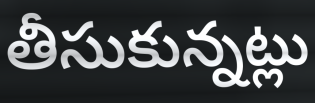
తీసుకున్నట్లు